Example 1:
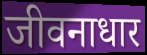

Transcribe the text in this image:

जीवनाधार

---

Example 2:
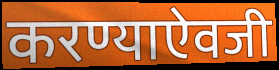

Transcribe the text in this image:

करण्याऐवजी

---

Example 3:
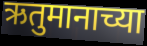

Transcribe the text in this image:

ऋतुमानाच्या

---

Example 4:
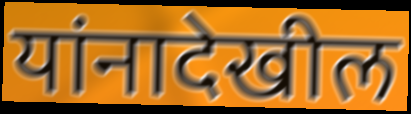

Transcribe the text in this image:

यांनादेखील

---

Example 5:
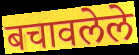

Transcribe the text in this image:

बचावलेले